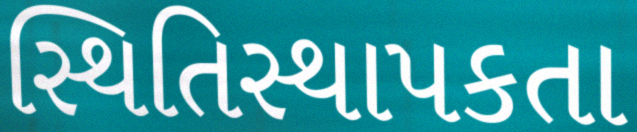
સ્થિતિસ્થાપકતા